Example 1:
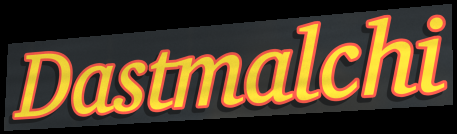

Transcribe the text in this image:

Dastmalchi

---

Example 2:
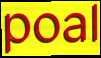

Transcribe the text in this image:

poal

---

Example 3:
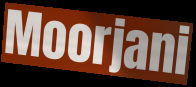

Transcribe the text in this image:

Moorjani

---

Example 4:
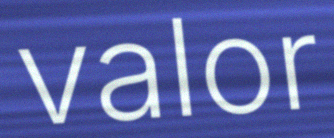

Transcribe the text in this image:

valor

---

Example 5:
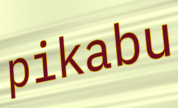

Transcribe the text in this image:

pikabu